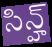
సిన్హ్